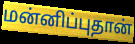
மன்னிப்புதான்